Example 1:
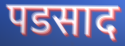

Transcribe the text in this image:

पडसाद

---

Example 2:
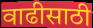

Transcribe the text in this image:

वाढीसाठी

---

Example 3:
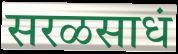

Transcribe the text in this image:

सरळसाधं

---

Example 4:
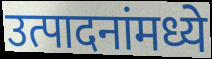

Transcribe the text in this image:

उत्पादनांमध्ये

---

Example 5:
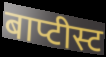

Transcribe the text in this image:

बाप्टीस्ट